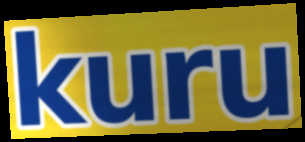
kuru